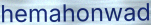
hemahonwad